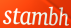
stambh